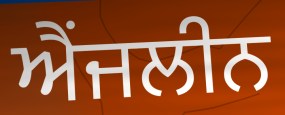
ਐਂਜਲੀਨ